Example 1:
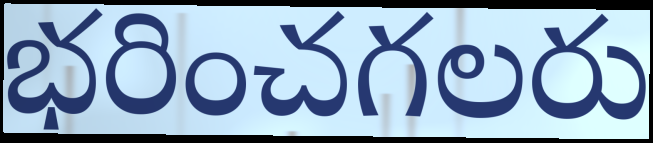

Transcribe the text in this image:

భరించగలరు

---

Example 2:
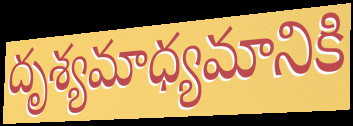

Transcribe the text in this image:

దృశ్యమాధ్యమానికి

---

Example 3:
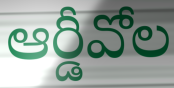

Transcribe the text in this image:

ఆర్డీవోల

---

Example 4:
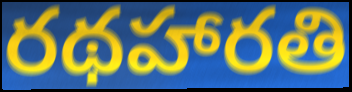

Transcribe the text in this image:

రథహారతి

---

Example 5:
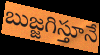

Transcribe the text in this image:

బుజ్జగిస్తూనే